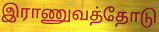
இராணுவத்தோடு